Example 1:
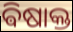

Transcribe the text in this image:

ଵିଷାକ୍ତ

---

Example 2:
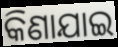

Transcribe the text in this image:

କିଣାଯାଇ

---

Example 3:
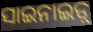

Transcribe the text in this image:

ସାଇନାଇଡ଼୍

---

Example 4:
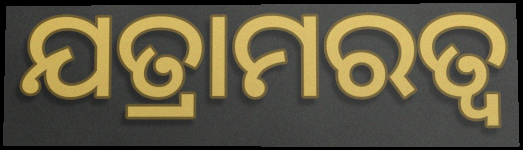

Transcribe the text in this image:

ଯତ୍ରାମରତ୍ଵ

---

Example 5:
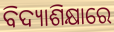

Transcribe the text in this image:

ବିଦ୍ୟାଶିକ୍ଷାରେ